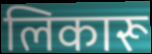
लिकारू